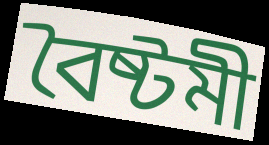
বৈষ্টমী